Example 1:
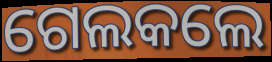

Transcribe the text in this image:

ଗେଲକଲେ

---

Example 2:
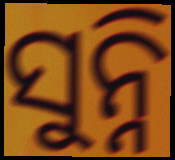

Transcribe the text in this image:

ସୁନ୍ନି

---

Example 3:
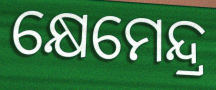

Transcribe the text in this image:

କ୍ଷେମେନ୍ଦ୍ର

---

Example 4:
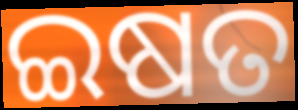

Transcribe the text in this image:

ଇଷତ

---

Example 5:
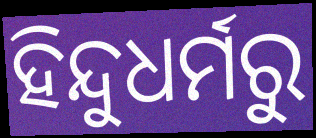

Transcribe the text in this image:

ହିନ୍ଦୁଧର୍ମରୁ